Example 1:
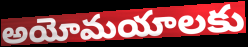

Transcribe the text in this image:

అయోమయాలకు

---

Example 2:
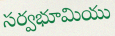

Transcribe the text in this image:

సర్వభూమియు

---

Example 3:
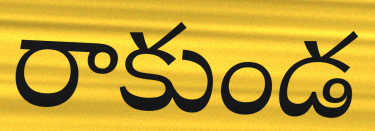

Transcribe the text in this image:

రాకుండ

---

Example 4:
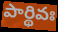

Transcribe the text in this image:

పార్థివః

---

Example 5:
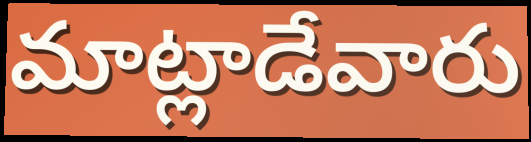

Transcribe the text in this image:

మాట్లాడేవారు